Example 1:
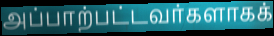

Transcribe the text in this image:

அப்பாற்பட்டவர்களாகக்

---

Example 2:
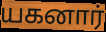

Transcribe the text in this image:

யகனார்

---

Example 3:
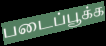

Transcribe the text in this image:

படைப்பூக்க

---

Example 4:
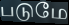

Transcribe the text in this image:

படுமே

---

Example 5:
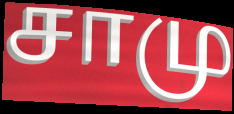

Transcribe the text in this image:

சாமு